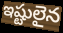
ఇష్టులైన